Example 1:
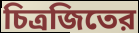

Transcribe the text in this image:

চিত্রজিতের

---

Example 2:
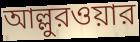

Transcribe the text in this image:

আল্লুরওয়ার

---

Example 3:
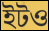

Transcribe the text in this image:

ইটও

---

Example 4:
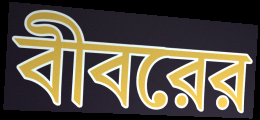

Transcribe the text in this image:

বীবরের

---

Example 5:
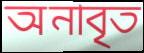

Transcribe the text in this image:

অনাবৃত